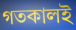
গতকালই